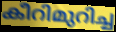
കീറിമുറിച്ച